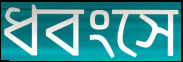
ধবংসে